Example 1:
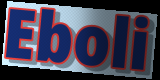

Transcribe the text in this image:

Eboli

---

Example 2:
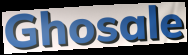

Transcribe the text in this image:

Ghosale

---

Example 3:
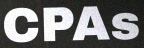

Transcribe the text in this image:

CPAs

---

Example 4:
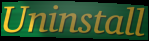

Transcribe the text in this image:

Uninstall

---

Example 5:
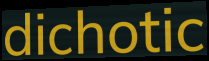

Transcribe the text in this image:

dichotic